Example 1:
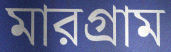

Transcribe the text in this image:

মারগ্রাম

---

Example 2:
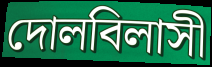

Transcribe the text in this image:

দোলবিলাসী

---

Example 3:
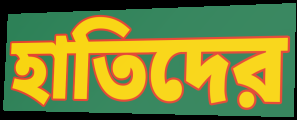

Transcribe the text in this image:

হাতিদের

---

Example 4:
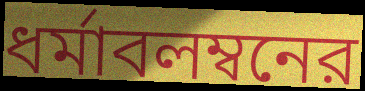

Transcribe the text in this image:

ধর্মাবলম্বনের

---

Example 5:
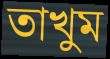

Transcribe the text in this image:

তাখুম